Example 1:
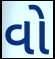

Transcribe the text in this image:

વો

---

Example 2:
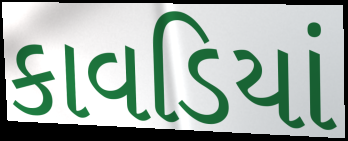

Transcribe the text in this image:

કાવડિયાં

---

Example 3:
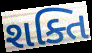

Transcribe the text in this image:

શક્તિ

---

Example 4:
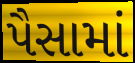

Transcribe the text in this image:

પૈસામાં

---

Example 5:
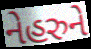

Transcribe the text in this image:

નેહરુને